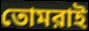
তোমরাই